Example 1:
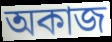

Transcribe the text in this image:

অকাজ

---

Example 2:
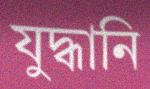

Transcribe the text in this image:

যুদ্ধানি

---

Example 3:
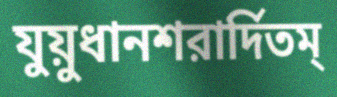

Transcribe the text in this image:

যুয়ুধানশরার্দিতম্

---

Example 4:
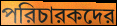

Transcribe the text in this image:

পরিচারকদের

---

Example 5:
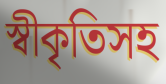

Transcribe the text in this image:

স্বীকৃতিসহ